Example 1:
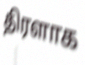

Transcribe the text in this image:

திரளாக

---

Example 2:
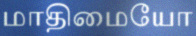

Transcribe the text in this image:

மாதிமையோ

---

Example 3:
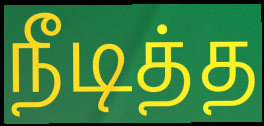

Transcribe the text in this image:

நீடித்த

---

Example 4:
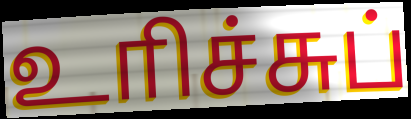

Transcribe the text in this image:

உரிச்சுப்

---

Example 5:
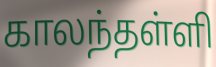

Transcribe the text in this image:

காலந்தள்ளி